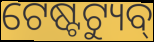
ଟେଷ୍ଟଟ୍ୟୁବ୍